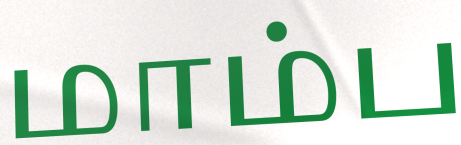
மாம்ப